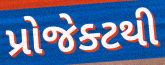
પ્રોજેક્ટથી